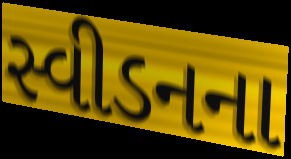
સ્વીડનના